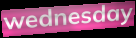
wednesday